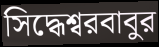
সিদ্ধেশ্বরবাবুর